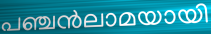
പഞ്ചൻലാമയായി